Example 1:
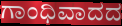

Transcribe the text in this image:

ಗಾಂಧಿವಾದದ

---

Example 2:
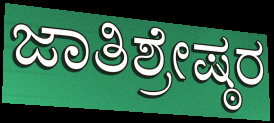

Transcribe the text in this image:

ಜಾತಿಶ್ರೇಷ್ಠರ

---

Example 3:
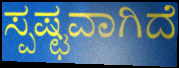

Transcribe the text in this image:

ಸ್ಪಷ್ಟವಾಗಿದೆ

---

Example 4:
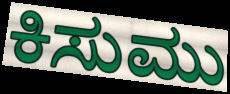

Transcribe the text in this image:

ಕಿಸುಮು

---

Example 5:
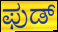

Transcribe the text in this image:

ಫುಡ್